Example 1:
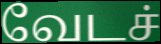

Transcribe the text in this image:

வேடச்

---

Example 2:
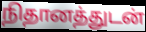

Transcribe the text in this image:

நிதானத்துடன்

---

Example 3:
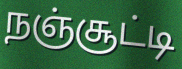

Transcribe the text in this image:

நஞ்சூட்டி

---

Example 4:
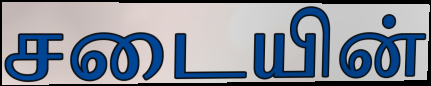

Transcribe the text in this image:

சடையின்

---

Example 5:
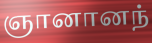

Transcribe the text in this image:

ஞானானந்